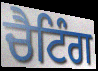
ਚੈਟਿੰਗ